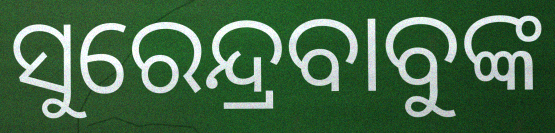
ସୁରେନ୍ଦ୍ରବାବୁଙ୍କ